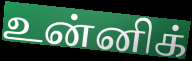
உன்னிக்